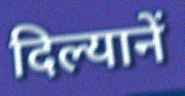
दिल्यानें